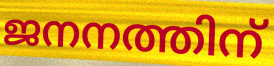
ജനനത്തിന്